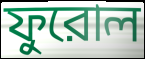
ফুরোল